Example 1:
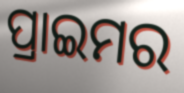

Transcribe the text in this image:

ପ୍ରାଇମର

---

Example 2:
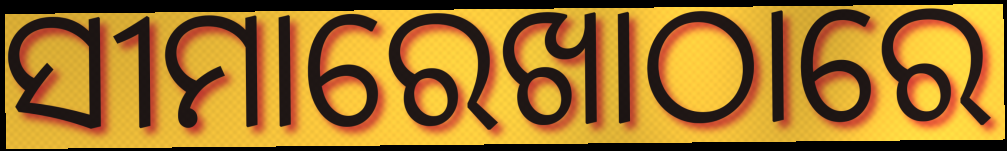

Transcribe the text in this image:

ସୀମାରେଖାଠାରେ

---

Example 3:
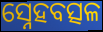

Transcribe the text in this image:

ସ୍ନେହବତ୍ସଳ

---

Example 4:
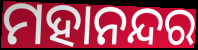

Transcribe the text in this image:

ମହାନନ୍ଦର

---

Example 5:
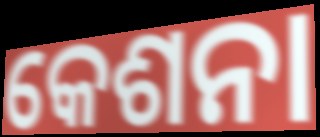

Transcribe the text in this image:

କେଶନା